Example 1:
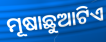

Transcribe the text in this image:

ମୂଷାଛୁଆଟିଏ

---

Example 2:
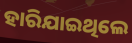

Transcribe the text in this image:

ହାରିଯାଇଥିଲେ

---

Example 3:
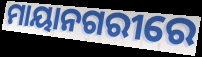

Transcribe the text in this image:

ମାୟାନଗରୀରେ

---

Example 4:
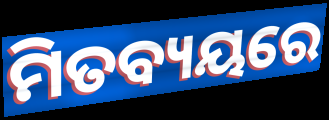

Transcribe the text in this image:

ମିତବ୍ୟୟରେ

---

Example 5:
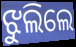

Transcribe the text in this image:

ଝୁଲିଲେ